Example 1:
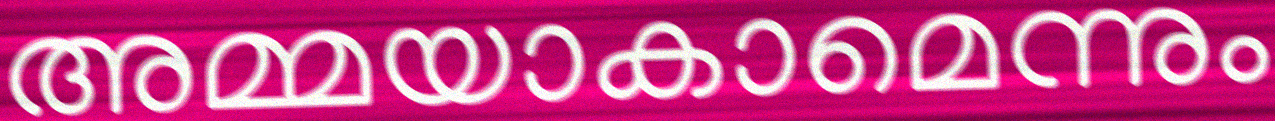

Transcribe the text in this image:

അമ്മയാകാമെന്നും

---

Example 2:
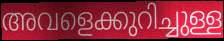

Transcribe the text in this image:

അവളെക്കുറിച്ചുള്ള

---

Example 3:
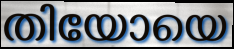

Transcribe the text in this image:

തിയോയെ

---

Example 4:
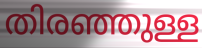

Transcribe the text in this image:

തിരഞ്ഞുള്ള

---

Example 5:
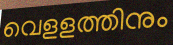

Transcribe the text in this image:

വെളളത്തിനും